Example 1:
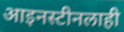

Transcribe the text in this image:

आइनस्टीनलाही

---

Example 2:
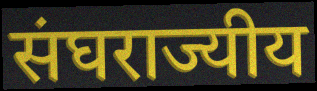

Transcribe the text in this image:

संघराज्यीय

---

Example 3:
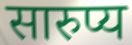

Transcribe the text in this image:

सारुप्य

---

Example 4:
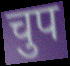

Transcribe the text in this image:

चुप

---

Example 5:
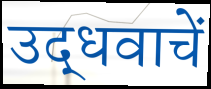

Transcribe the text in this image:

उद्धवाचें